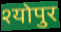
श्योपुर